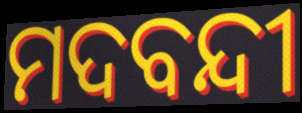
ମଦବନ୍ଦୀ